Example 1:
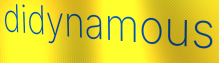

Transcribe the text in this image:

didynamous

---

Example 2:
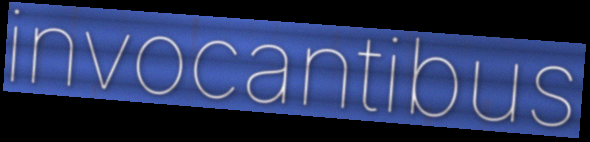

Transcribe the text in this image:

invocantibus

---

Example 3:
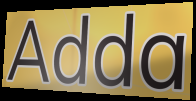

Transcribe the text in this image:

Adda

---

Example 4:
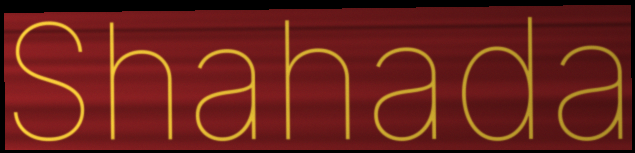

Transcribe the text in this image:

Shahada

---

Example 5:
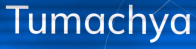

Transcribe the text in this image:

Tumachya